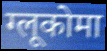
ग्लूकोमा